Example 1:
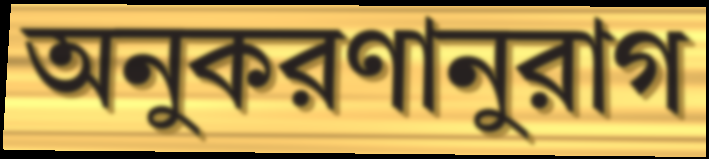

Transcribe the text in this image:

অনুকরণানুরাগ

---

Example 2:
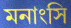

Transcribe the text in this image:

মনাংসি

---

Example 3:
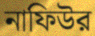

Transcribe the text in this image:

নাফিউর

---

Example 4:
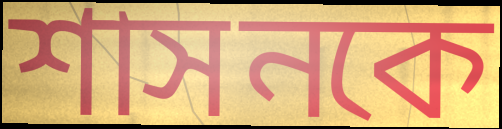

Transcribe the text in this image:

শাসনকে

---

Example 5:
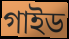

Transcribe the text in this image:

গাইড